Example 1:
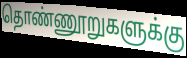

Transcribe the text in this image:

தொண்ணூறுகளுக்கு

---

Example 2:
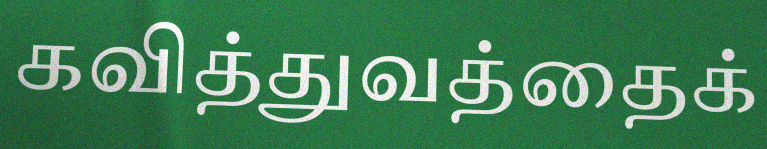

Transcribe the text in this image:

கவித்துவத்தைக்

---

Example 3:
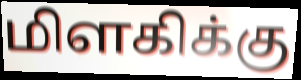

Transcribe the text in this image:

மிளகிக்கு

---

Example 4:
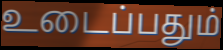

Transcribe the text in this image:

உடைப்பதும்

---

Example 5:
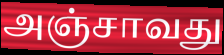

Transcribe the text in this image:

அஞ்சாவது